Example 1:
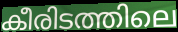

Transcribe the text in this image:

കീരിടത്തിലെ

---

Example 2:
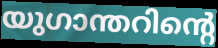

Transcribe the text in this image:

യുഗാന്തറിന്റെ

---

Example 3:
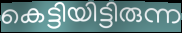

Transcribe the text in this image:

കെട്ടിയിട്ടിരുന്ന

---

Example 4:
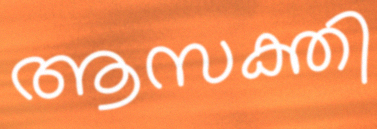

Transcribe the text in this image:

ആസക്തി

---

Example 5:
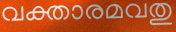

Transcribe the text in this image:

വക്താരമവതു